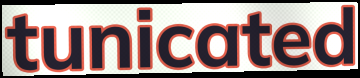
tunicated